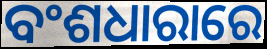
ବଂଶଧାରାରେ